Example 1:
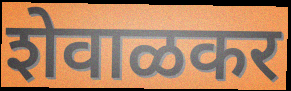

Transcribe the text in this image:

शेवाळकर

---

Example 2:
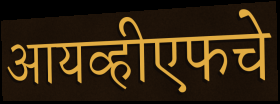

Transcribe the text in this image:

आयव्हीएफचे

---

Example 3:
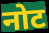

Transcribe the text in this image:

नोट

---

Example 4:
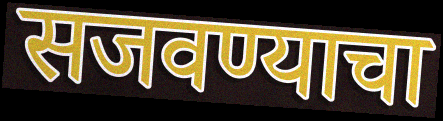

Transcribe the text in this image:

सजवण्याचा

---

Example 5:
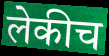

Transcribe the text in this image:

लेकीच